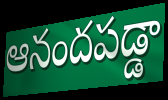
ఆనందపడ్డా